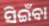
ସିଇଁବା